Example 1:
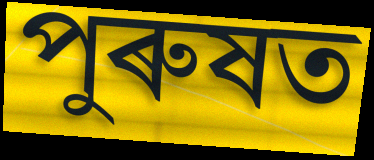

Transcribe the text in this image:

পুৰুষত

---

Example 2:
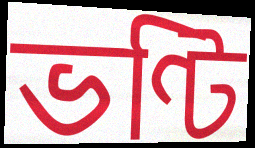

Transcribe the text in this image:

ভণ্টি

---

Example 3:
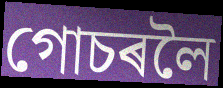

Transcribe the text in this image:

গোচৰলৈ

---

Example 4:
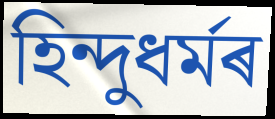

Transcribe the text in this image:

হিন্দুধৰ্মৰ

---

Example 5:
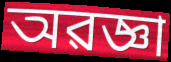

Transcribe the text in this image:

অৱজ্ঞা